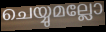
ചെയ്യുമല്ലോ